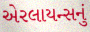
એરલાયન્સનું